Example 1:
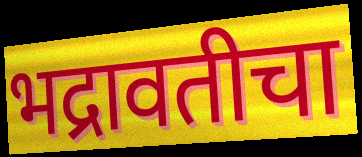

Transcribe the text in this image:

भद्रावतीचा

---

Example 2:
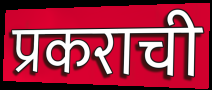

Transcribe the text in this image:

प्रकराची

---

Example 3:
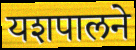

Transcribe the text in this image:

यशपालने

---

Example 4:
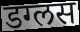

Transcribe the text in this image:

डग्लस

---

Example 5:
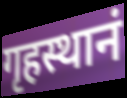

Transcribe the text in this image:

गृहस्थानं